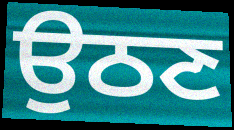
ਉਠਣ